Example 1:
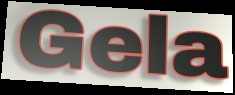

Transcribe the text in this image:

Gela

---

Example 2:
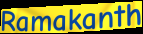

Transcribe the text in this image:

Ramakanth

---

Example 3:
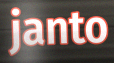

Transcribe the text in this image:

janto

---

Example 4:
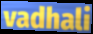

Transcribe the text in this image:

vadhali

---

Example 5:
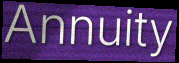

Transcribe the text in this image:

Annuity